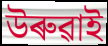
উৰুৱাই